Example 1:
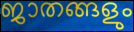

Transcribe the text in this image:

ജാതങ്ങളും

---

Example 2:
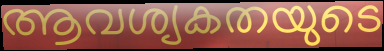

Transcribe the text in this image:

ആവശ്യകതയുടെ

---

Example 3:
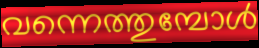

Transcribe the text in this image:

വന്നെത്തുമ്പോൾ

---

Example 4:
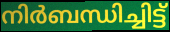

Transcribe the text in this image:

നിർബന്ധിച്ചിട്ട്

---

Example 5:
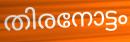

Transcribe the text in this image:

തിരനോട്ടം